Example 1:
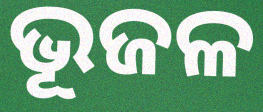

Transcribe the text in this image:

ଭୂଜଳ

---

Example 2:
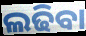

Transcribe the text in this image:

ଲଢିବା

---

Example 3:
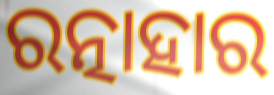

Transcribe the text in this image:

ରତ୍ନାହାର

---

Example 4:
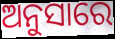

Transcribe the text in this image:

ଅନୁସାରେ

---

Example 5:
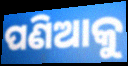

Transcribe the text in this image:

ପଣିଆକୁ